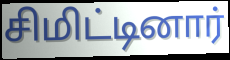
சிமிட்டினார்